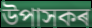
উপাসকৰ